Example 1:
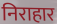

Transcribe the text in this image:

निराहार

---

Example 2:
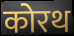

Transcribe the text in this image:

कोरथ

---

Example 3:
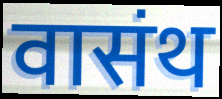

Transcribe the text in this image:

वासंथ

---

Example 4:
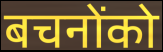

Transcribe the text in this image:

बचनोंको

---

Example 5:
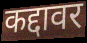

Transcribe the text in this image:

कद्दावर